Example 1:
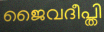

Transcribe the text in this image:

ജൈവദീപ്തി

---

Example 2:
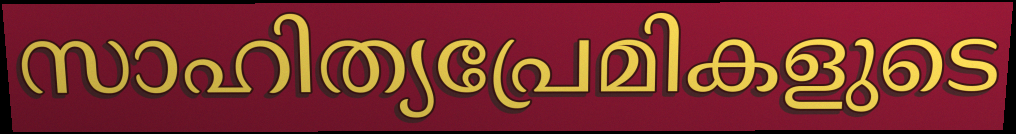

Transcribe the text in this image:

സാഹിത്യപ്രേമികളുടെ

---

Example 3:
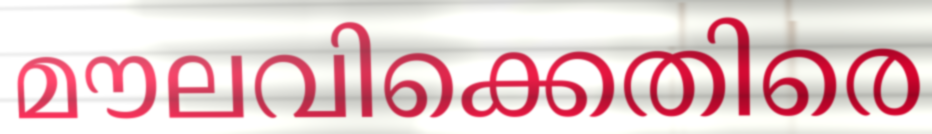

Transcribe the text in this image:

മൗലവിക്കെതിരെ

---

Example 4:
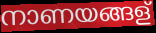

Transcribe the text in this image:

നാണയങ്ങള്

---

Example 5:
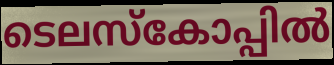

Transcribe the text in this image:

ടെലസ്കോപ്പിൽ